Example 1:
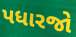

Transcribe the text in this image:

પધારજો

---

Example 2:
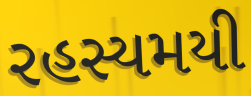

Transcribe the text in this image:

રહસ્યમયી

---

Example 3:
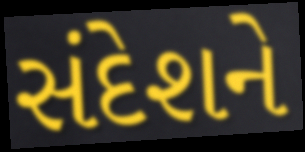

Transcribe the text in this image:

સંદેશને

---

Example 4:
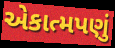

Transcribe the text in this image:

એકાત્મપણું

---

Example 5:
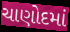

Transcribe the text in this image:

ચાણોદમાં